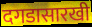
दगडासारखी